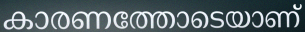
കാരണത്തോടെയാണ്